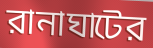
রানাঘাটের